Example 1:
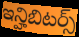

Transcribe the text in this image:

ఇన్హిబిటర్స్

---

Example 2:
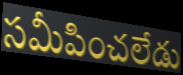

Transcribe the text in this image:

సమీపించలేడు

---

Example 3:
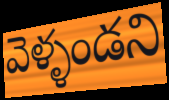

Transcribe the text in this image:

వెళ్ళండని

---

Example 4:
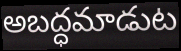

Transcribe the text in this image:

అబద్ధమాడుట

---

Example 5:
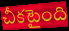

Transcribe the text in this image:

చీకటైంది